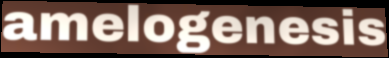
amelogenesis